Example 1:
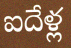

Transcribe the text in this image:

ఐదేళ్ల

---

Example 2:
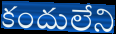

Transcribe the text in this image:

కందులేని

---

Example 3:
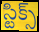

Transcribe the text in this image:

స్టిక్స్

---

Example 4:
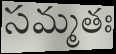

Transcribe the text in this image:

సమ్మతః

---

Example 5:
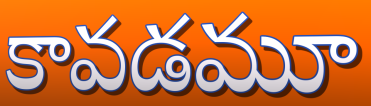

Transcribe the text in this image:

కావడమూ